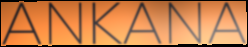
ANKANA